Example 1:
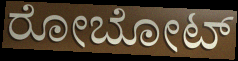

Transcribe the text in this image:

ರೋಬೋಟ್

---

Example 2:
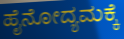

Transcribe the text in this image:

ಹೈನೋದ್ಯಮಕ್ಕೆ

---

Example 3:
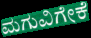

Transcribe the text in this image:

ಮಗುವಿಗೇಕೆ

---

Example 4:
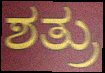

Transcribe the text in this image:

ಶತ್ರು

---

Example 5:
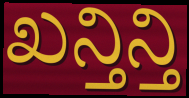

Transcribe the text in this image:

ಖನ್ತಿನ್ತಿ